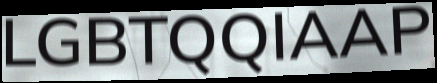
LGBTQQIAAP